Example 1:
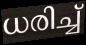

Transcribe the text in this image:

ധരിച്ച്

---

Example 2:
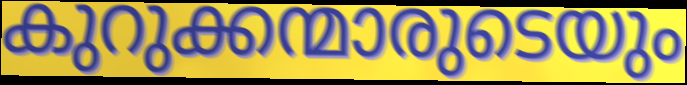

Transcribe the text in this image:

കുറുക്കന്മാരുടെയും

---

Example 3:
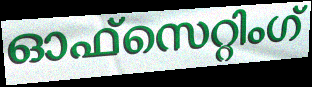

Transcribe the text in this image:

ഓഫ്സെറ്റിംഗ്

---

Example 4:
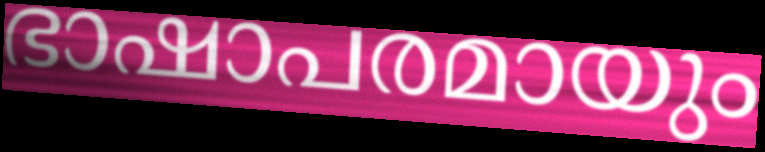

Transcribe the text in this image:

ഭാഷാപരമായും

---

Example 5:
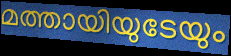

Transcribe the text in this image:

മത്തായിയുടേയും